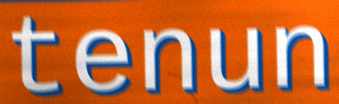
tenun